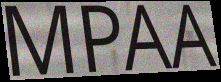
MPAA